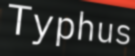
Typhus